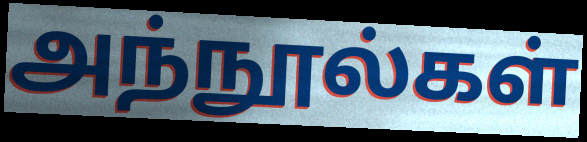
அந்நூல்கள்